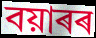
বয়াৰৰ